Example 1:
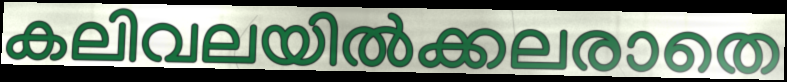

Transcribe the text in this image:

കലിവലയിൽക്കലരാതെ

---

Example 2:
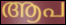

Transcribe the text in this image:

ആപ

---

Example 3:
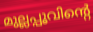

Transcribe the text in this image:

മുല്ലപ്പൂവിന്റെ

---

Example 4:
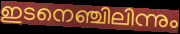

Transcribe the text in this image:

ഇടനെഞ്ചിലിന്നും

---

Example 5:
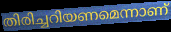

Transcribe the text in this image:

തിരിച്ചറിയണമെന്നാണ്